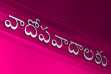
వాదోపవాదాలకు